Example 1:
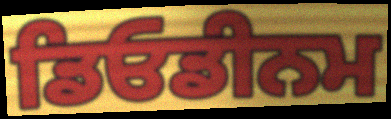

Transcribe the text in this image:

ਡਿਓਡੀਨਮ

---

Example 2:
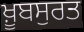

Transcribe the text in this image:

ਖ਼ੂਬਸੁਰਤ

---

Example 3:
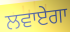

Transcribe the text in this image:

ਲਵਾਏਗਾ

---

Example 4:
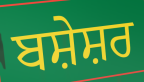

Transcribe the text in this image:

ਬਸ਼ੇਸ਼ਰ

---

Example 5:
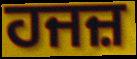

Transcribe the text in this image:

ਹਜਜ਼